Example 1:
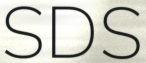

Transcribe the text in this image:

SDS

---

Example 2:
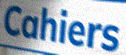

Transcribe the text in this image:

Cahiers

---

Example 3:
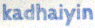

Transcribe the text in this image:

kadhaiyin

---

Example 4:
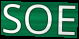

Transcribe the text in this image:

SOE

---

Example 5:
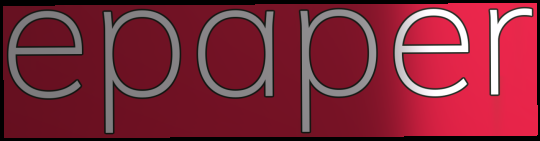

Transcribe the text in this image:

epaper